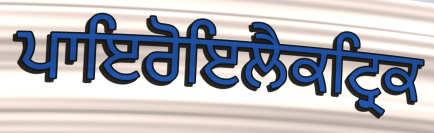
ਪਾਇਰੋਇਲੈਕਟ੍ਰਿਕ